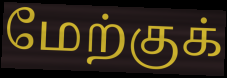
மேற்குக்